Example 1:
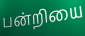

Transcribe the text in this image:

பன்றியை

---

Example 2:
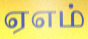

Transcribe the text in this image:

ஏஎம்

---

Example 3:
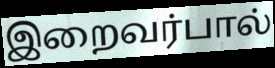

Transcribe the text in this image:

இறைவர்பால்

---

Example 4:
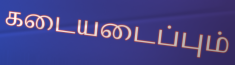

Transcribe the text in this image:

கடையடைப்பும்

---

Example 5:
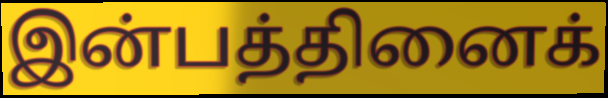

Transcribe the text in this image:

இன்பத்தினைக்